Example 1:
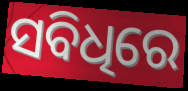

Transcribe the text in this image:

ସବିଧିରେ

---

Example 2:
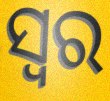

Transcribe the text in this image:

ସ୍ବର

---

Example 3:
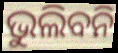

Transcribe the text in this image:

ଭୁଲିବନି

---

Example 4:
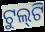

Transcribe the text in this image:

ଟୁଲ୍‌ଟି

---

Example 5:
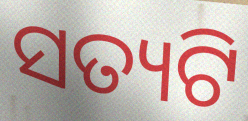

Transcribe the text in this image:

ସତ୍ୟଟି